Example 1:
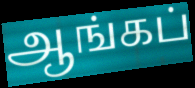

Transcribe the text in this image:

ஆங்கப்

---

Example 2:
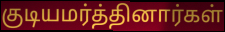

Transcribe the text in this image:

குடியமர்த்தினார்கள்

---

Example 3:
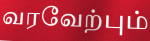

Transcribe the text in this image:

வரவேற்பும்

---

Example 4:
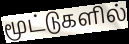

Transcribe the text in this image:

மூட்டுகளில்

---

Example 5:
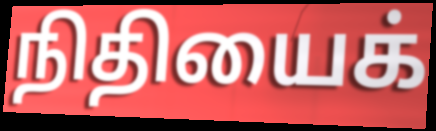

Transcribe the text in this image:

நிதியைக்